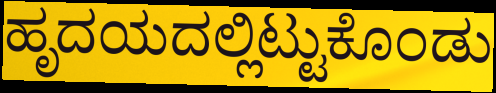
ಹೃದಯದಲ್ಲಿಟ್ಟುಕೊಂಡು